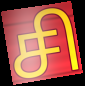
சி